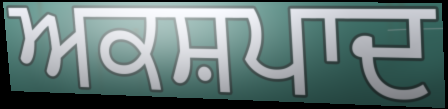
ਅਕਸ਼ਪਾਦ